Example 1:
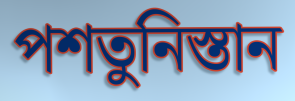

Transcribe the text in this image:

পশতুনিস্তান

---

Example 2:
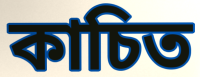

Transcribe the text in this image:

কাচিত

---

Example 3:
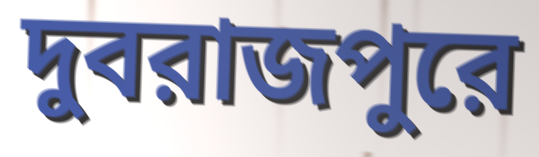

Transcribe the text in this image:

দুবরাজপুরে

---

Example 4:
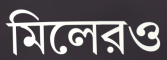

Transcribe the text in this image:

মিলেরও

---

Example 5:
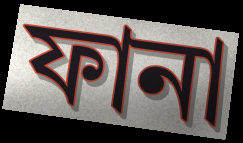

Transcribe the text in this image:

ফানা